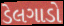
ડેલગાડો